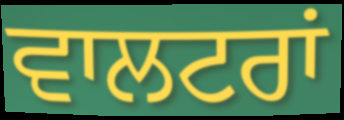
ਵਾਲਟਰਾਂ